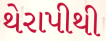
થેરાપીથી